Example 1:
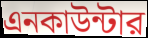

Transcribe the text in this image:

এনকাউন্টার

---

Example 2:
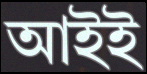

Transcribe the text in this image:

আইই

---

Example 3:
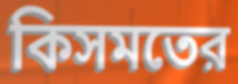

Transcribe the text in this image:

কিসমতের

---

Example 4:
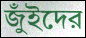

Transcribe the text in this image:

জুঁইদের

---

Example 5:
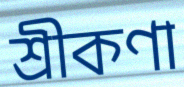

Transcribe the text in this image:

শ্রীকণা